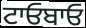
ਟਾਓਬਾਓ